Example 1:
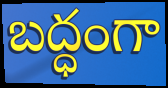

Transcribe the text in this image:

బద్ధంగా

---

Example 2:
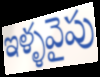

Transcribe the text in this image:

ఇళ్ళవైపు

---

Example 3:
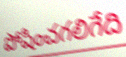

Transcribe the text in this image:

పోషించగలిగేది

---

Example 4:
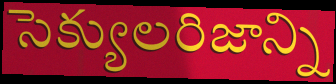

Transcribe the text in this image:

సెక్యులరిజాన్ని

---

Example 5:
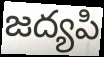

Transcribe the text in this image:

జద్యపి